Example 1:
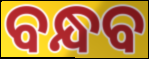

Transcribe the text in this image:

ବନ୍ଧବ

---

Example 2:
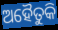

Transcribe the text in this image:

ଅହୈତୁକି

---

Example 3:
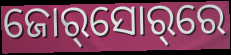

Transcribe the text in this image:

ଜୋର୍‌ସୋର୍‌ରେ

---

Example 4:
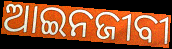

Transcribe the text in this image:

ଆଇନଜୀବୀ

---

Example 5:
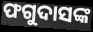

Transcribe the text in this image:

ଫଗୁଦାସଙ୍କ